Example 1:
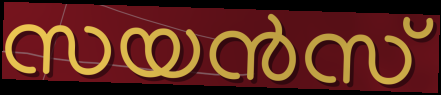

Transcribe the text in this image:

സയൻസ്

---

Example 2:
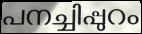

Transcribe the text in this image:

പനച്ചിപ്പുറം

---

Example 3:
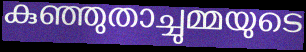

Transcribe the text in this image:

കുഞ്ഞുതാച്ചുമ്മയുടെ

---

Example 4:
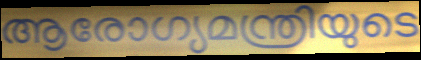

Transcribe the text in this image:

ആരോഗ്യമന്ത്രിയുടെ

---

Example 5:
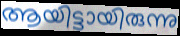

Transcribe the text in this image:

ആയിട്ടായിരുന്നു